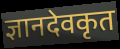
ज्ञानदेवकृत